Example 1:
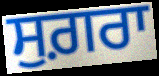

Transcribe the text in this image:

ਸੁਗ਼ਰਾ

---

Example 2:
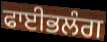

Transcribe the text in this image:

ਫਾਈਭਲੰਗ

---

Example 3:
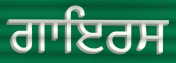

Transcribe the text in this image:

ਗਾਇਰਸ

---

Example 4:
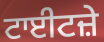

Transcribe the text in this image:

ਟਾਈਟਜ਼ੇ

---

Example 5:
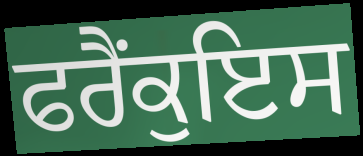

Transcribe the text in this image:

ਫਰੈਂਕੁਇਸ